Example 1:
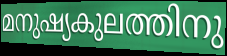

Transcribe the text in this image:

മനുഷ്യകുലത്തിനു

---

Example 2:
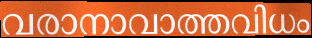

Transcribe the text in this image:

വരാനാവാത്തവിധം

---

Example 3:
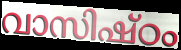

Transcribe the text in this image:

വാസിഷ്ഠം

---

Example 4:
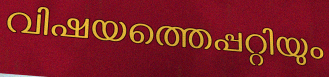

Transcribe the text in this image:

വിഷയത്തെപ്പറ്റിയും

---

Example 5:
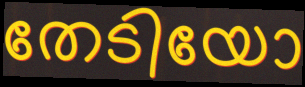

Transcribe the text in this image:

തേടിയോ